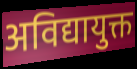
अविद्यायुक्त